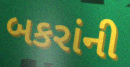
બકરાંની